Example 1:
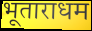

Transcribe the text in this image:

भूताराधम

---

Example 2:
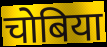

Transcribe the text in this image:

चोबिया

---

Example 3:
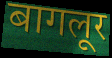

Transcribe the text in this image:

बागलूर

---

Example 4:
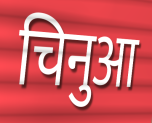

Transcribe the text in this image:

चिनुआ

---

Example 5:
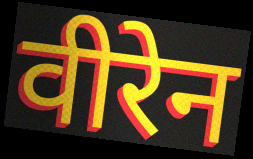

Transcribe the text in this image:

वीरेन